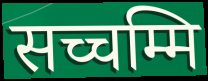
सच्चम्मि